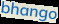
bhango